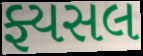
ફ્યસલ